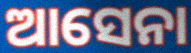
ଆସେନା